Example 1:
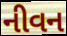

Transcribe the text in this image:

નીવન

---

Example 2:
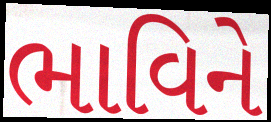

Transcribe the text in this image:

ભાવિને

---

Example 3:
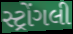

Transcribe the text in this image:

સ્ટ્રોંગલી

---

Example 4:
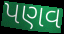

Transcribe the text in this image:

પણવ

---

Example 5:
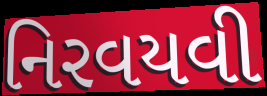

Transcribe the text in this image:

નિરવયવી